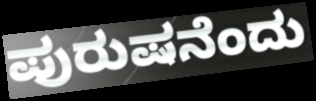
ಪುರುಷನೆಂದು